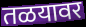
तळयावर